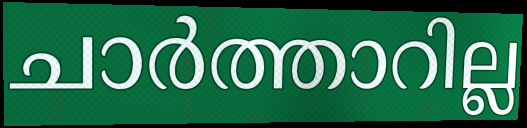
ചാർത്താറില്ല